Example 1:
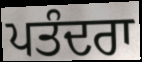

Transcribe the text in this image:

ਪਤੰਦਰਾ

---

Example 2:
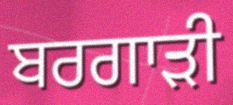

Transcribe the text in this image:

ਬਰਗਾੜੀ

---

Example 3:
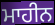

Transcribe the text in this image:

ਮਾਹੀਨ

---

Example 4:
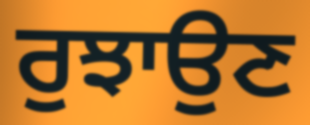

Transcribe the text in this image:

ਰੁਝਾਉਣ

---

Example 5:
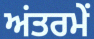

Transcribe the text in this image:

ਅਂਤਰਮੇਂ